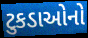
ટુકડાઓનો